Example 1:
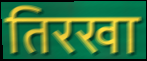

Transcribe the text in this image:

तिरखा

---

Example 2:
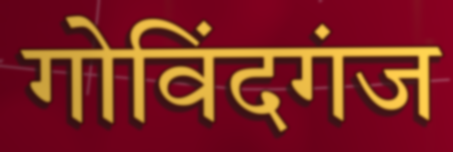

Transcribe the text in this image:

गोविंदगंज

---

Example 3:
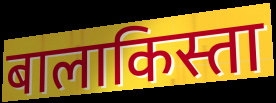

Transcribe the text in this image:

बालाकिस्ता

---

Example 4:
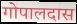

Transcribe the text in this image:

गोपालदास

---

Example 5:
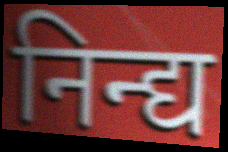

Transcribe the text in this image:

निन्द्य